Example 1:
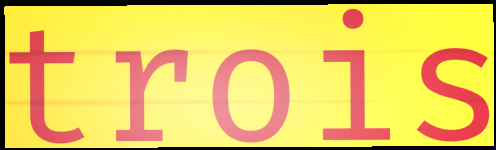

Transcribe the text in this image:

trois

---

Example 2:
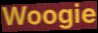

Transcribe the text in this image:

Woogie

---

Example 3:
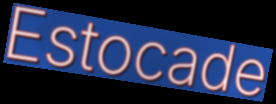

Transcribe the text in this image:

Estocade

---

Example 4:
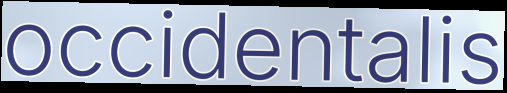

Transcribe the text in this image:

occidentalis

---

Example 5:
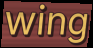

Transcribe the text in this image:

wing